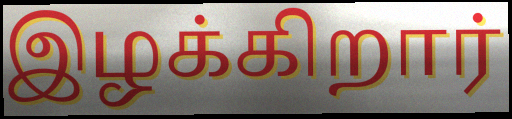
இழக்கிறார்